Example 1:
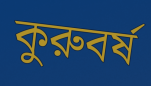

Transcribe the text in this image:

কুরুবর্ষ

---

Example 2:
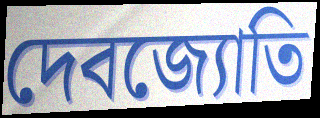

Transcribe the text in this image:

দেবজ্যোতি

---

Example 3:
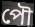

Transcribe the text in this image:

পৌ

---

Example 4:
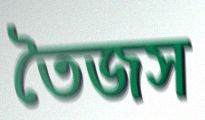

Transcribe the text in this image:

তৈজস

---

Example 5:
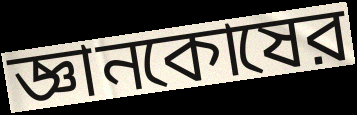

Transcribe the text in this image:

জ্ঞানকোষের